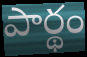
పార్థం